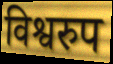
विश्वरुप